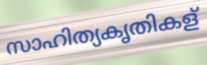
സാഹിത്യകൃതികള്